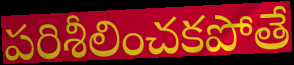
పరిశీలించకపోతే